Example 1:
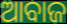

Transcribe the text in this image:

ଆବାଜ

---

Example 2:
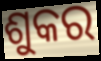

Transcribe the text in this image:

ଶୁକର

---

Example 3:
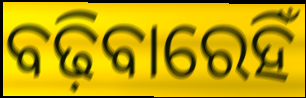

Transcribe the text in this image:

ବଢ଼ିବାରେହିଁ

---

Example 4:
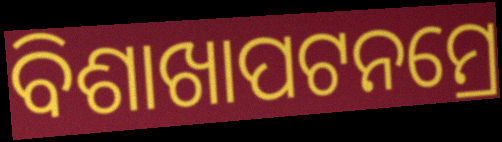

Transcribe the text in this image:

ବିଶାଖାପଟନମ୍ରେ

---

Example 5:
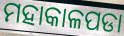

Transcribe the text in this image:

ମହାକାଳପଡା